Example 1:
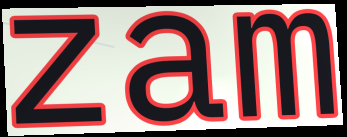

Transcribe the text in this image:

zam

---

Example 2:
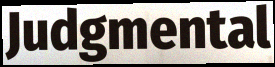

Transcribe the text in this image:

Judgmental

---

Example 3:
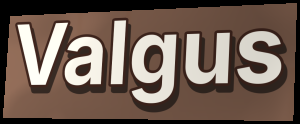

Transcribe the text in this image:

Valgus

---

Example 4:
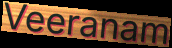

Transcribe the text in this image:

Veeranam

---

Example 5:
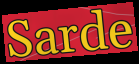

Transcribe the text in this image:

Sarde